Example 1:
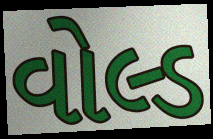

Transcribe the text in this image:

વોલ્ડ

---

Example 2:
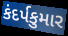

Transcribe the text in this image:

કંદર્પકુમાર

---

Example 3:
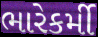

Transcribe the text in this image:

ભારેકર્મી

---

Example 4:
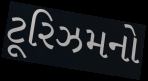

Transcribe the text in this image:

ટૂરિઝમનો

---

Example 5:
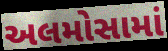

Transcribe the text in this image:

અલમોસામાં